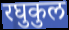
रघुकुल